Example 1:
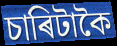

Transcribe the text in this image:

চাৰিটাকৈ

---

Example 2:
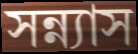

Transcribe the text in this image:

সন্ন্যাস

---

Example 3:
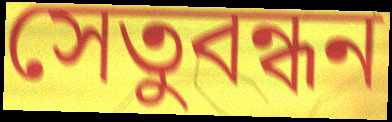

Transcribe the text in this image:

সেতুবন্ধন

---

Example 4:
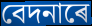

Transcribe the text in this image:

বেদনাৰে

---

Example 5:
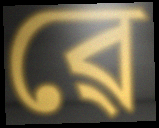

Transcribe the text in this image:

ৱে